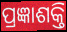
ପ୍ରଜ୍ଞାଶକ୍ତି